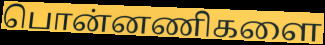
பொன்னணிகளை